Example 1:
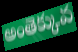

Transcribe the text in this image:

అంతెక్కువ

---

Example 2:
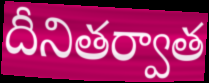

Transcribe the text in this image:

దీనితర్వాత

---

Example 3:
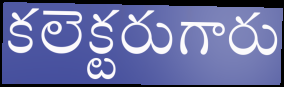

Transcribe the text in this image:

కలెక్టరుగారు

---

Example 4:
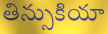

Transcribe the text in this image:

తిన్సుకియా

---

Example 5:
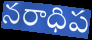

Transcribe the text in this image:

నరాధిప